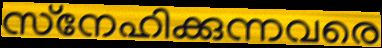
സ്‌നേഹിക്കുന്നവരെ